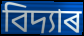
বিদ্যাৰ